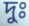
দুঃ